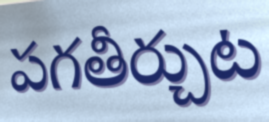
పగతీర్చుట